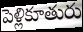
పెళ్లికూతురు